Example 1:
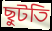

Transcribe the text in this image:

ছুটতি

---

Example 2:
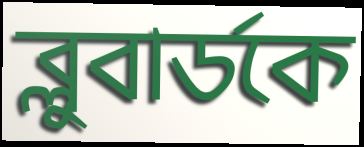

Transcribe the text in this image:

ব্লুবার্ডকে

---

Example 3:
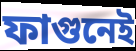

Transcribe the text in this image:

ফাগুনেই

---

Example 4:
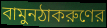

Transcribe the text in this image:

বামুনঠাকরুণের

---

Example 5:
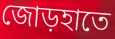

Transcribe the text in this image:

জোড়হাতে